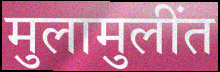
मुलामुलींत